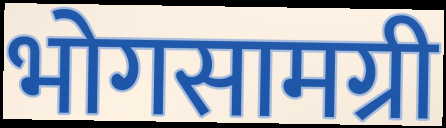
भोगसामग्री